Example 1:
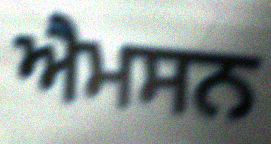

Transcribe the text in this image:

ਐਮਸਨ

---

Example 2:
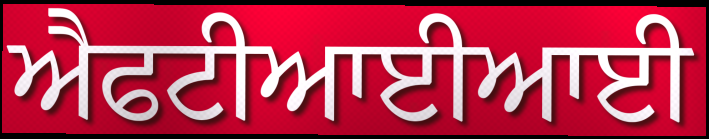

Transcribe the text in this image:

ਐਫਟੀਆਈਆਈ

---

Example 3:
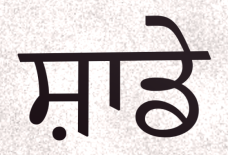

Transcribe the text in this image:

ਸ਼ਾਡੇ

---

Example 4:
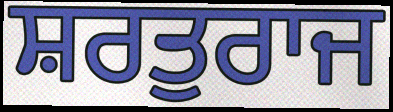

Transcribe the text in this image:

ਸ਼ਰਤੁਰਾਜ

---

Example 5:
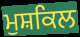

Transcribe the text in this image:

ਮੁਸ਼ਕਿਲ